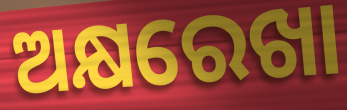
ଅକ୍ଷରେଖା